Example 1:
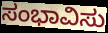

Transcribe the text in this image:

ಸಂಭಾವಿಸು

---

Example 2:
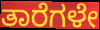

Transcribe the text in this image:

ತಾರೆಗಳೇ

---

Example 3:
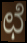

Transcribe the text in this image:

ಛೆ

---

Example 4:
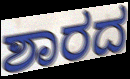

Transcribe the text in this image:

ಶಾರದ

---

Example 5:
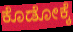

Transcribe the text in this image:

ಕೊಡೋಕ್ಕೆ